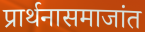
प्रार्थनासमाजांत